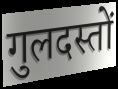
गुलदस्तों